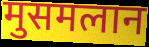
मुसमलान